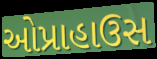
ઓપ્રાહાઉસ